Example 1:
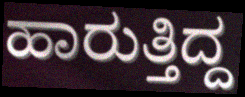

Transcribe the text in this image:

ಹಾರುತ್ತಿದ್ದ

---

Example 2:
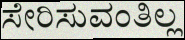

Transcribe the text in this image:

ಸೇರಿಸುವಂತಿಲ್ಲ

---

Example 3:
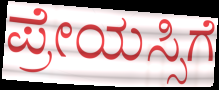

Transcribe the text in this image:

ಪ್ರೇಯಸ್ಸಿಗೆ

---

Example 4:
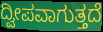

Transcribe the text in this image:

ದ್ವೀಪವಾಗುತ್ತದೆ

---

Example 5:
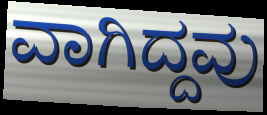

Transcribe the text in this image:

ವಾಗಿದ್ದವು